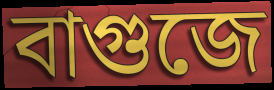
বাগুজে